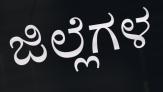
ಜಿಲ್ಲೆಗಳ